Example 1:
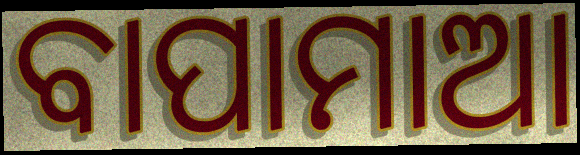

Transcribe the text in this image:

ବାପାମାଆ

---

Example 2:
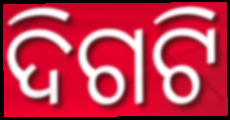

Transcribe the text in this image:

ଦିଗଟି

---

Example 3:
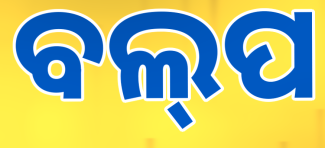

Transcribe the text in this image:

ବଲ୍‍ପ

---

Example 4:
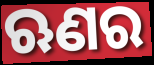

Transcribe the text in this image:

ଋଣର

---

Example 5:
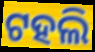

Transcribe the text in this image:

ଟହଲି